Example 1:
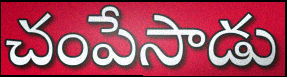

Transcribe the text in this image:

చంపేసాడు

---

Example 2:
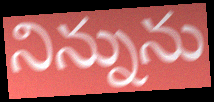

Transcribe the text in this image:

నిన్నును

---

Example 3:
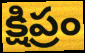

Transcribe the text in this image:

క్షిప్రం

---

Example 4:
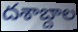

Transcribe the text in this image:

దశాబ్దాల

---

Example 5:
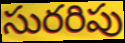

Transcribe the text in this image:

సురరిపు